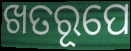
ଖତରୂପେ